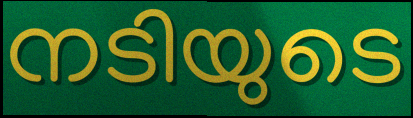
നടിയുടെ